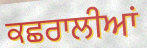
ਕਛਰਾਲੀਆਂ